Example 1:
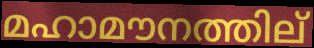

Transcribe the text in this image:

മഹാമൗനത്തില്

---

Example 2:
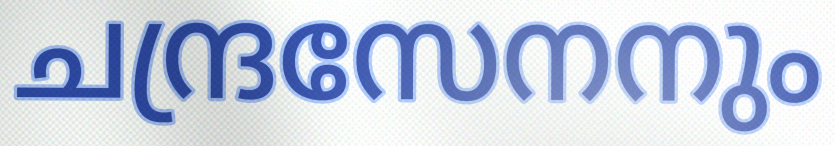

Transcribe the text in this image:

ചന്ദ്രസേനനും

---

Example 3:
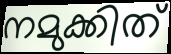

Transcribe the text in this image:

നമുക്കിത്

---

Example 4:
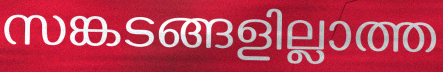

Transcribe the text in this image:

സങ്കടങ്ങളില്ലാത്ത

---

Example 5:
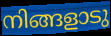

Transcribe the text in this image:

നിങ്ങളാടു